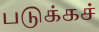
படுக்கச்